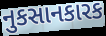
નુકસાનકારક